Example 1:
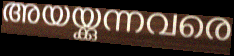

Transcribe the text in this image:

അയയ്ക്കുന്നവരെ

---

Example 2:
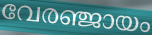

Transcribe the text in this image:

വേരഞ്ജായം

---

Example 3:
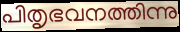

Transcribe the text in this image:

പിതൃഭവനത്തിന്നു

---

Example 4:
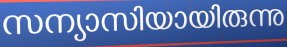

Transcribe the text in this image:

സന്യാസിയായിരുന്നു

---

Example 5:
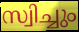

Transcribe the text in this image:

സ്വിച്ചും